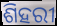
ଶିହରୀ